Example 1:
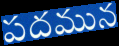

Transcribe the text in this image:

పదమున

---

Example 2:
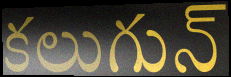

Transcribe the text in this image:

కలుగున్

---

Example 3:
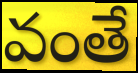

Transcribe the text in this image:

వంతే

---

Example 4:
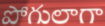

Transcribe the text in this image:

పోగులాగా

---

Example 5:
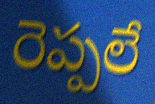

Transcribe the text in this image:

రెప్పలే